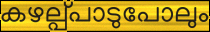
കഴല്പ്പാടുപോലും